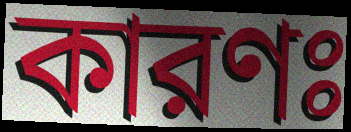
কারণঃ